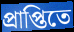
প্রাপ্তিতে